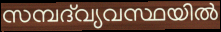
സമ്പദ്‌വ്യവസ്ഥയിൽ